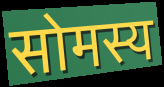
सोमस्य